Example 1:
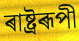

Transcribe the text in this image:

ৰাষ্ট্ৰৰূপী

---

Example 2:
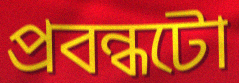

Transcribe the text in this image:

প্ৰবন্ধটো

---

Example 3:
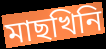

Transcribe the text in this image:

মাছখিনি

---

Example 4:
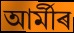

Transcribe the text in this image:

আৰ্মীৰ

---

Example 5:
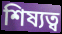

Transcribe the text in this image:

শিষ্যত্ব